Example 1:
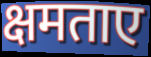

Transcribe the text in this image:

क्षमताए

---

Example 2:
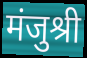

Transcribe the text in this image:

मंजुश्री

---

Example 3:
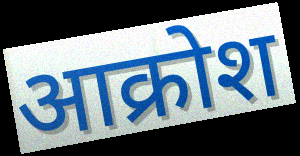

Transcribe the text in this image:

आक्रोश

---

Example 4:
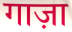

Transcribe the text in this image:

गाज़ा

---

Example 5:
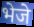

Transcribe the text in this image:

भेजे